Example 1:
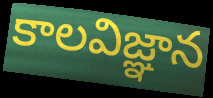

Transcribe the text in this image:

కాలవిజ్ఞాన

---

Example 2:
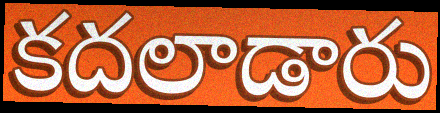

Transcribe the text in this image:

కదలాడారు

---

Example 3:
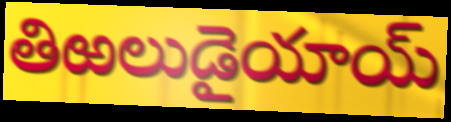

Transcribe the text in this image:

తిఱలుడైయాయ్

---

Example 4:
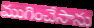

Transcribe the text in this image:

ముగించేసాను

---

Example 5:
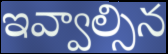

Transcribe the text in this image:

ఇవ్వాల్సిన